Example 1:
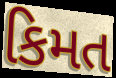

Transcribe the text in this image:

કિમત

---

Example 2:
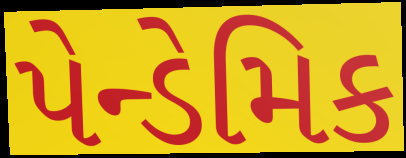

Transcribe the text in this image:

પેન્ડેમિક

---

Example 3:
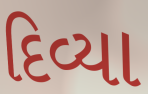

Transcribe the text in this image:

દિવ્યા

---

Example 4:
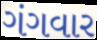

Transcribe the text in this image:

ગંગવાર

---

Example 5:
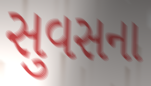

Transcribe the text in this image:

સુવસના